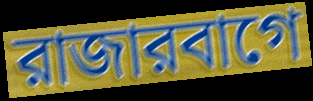
রাজারবাগে